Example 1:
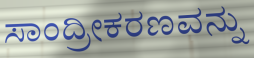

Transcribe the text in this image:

ಸಾಂದ್ರೀಕರಣವನ್ನು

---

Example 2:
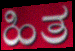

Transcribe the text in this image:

ಹಿತ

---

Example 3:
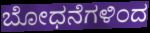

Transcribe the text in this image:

ಬೋಧನೆಗಳಿಂದ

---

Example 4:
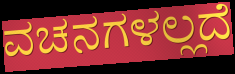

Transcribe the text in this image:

ವಚನಗಳಲ್ಲದೆ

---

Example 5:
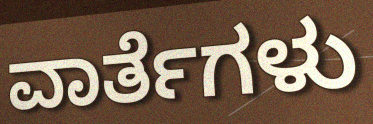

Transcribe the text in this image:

ವಾರ್ತೆಗಳು